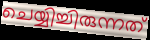
ചെയ്യിച്ചിരുന്നത്